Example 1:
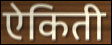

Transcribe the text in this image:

ऐकिती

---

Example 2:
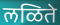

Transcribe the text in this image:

लळिते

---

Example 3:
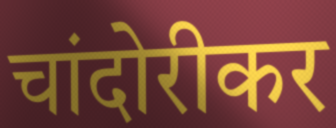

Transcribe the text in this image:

चांदोरीकर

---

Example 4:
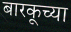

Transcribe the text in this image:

बारकूच्या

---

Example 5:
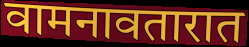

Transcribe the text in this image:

वामनावतारात